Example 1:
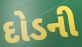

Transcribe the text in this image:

દોડની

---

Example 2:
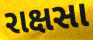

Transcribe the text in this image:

રાક્ષસા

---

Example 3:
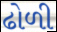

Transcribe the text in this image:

ઢોળી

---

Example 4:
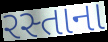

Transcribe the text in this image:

રસ્તાના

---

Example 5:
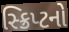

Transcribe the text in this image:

સ્ક્રિપ્ટનો